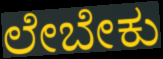
ಲೇಬೇಕು